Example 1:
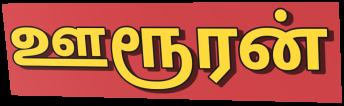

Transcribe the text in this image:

ஊரூரன்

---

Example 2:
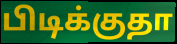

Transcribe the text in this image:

பிடிக்குதா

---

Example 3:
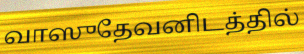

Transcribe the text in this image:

வாஸுதேவனிடத்தில்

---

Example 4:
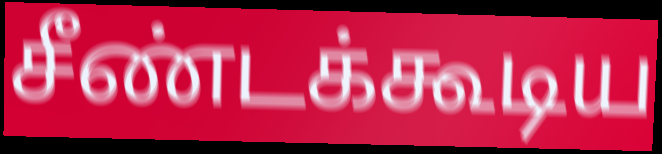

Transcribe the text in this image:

சீண்டக்கூடிய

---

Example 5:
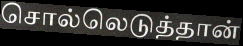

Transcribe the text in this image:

சொல்லெடுத்தான்